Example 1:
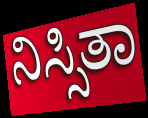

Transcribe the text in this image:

ನಿಸ್ಸಿತಾ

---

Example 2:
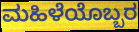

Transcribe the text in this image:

ಮಹಿಳೆಯೊಬ್ಬರ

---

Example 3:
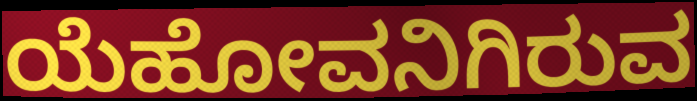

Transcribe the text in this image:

ಯೆಹೋವನಿಗಿರುವ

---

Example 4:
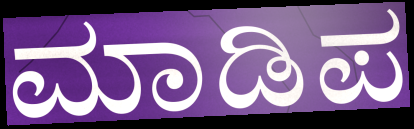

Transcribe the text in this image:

ಮಾಡಿಪ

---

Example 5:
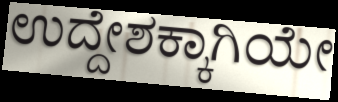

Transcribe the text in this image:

ಉದ್ದೇಶಕ್ಕಾಗಿಯೇ